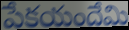
పేకయందేమి